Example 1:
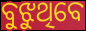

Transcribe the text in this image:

ବୁଝୁଥିବେ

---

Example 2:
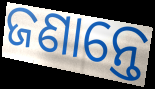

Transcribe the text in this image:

ଜଣାନ୍ତେ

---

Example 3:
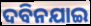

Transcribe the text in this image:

ଦବିନଯାଇ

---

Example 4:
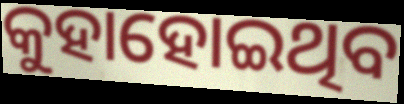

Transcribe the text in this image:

କୁହାହୋଇଥିବ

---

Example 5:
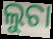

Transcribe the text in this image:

ଲୁଚା